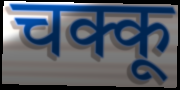
चक्कू